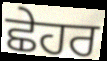
ਛੇਹਰ